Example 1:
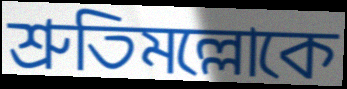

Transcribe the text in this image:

শ্রুতিমল্লোকে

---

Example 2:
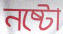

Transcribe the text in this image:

নষ্টো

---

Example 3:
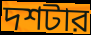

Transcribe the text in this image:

দশটার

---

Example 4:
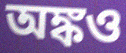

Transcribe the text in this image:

অঙ্কও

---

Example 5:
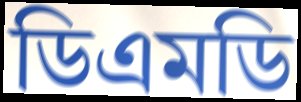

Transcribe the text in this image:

ডিএমডি